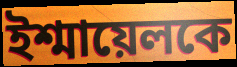
ইশ্মায়েলকে